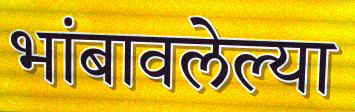
भांबावलेल्या